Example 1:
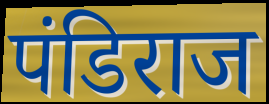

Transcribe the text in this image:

पंडिराज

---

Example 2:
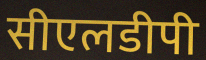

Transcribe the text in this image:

सीएलडीपी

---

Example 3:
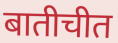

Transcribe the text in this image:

बातीचीत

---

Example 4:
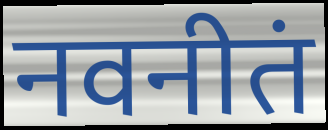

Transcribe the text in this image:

नवनीतं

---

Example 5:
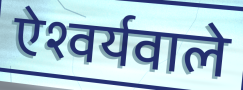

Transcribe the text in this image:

ऐश्वर्यवाले